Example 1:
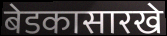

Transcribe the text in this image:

बेडकासारखे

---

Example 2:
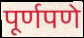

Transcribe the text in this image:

पूर्णपणे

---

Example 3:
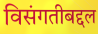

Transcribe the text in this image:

विसंगतीबद्दल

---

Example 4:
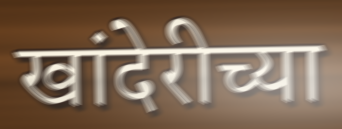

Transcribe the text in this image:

खांदेरीच्या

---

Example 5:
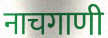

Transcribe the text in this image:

नाचगाणी